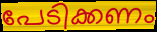
പേടിക്കണം